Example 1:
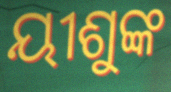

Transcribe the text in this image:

ୟୀଶୁଙ୍କ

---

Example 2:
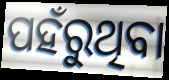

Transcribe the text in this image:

ପହଁରୁଥିବା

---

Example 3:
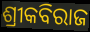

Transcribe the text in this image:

ଶ୍ରୀକବିରାଜ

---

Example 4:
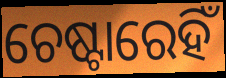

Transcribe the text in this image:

ଚେଷ୍ଟାରେହିଁ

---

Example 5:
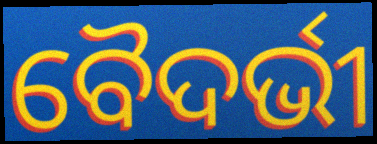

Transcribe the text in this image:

ବୈଦର୍ଭୀ